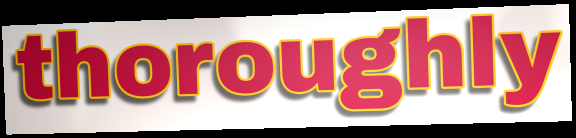
thoroughly